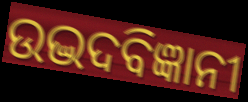
ଉଦ୍ଭଦବିଜ୍ଞାନୀ